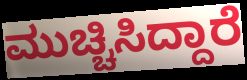
ಮುಚ್ಚಿಸಿದ್ದಾರೆ